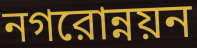
নগরোন্নয়ন